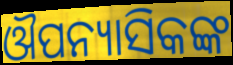
ଔପନ୍ୟାସିକଙ୍କ